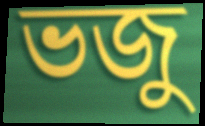
ভজু